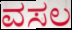
ವಸಲ